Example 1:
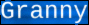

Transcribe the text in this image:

Granny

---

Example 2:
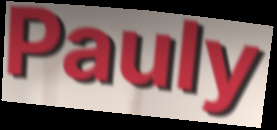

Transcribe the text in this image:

Pauly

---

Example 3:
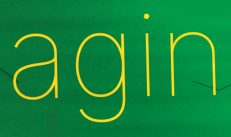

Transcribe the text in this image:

agin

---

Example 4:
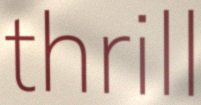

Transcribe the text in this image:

thrill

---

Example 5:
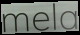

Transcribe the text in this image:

mela